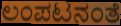
ಲಂಪಟನಂತೆ